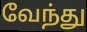
வேந்து